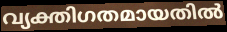
വ്യക്തിഗതമായതിൽ